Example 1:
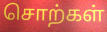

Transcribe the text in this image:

சொற்கள்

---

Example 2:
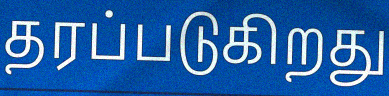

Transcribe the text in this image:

தரப்படுகிறது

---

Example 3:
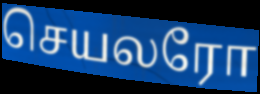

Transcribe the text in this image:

செயலரோ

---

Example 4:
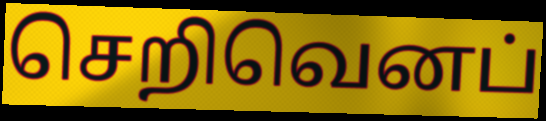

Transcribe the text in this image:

செறிவெனப்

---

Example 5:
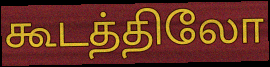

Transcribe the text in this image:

கூடத்திலோ